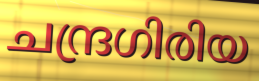
ചന്ദ്രഗിരിയ